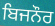
ਬਿਜਨੌਰ